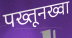
पख्तूनख्वा